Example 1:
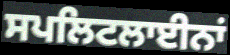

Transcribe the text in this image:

ਸਪਲਿਟਲਾਈਨਾਂ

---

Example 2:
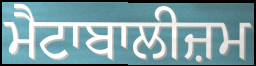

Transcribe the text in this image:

ਮੈਟਾਬਾਲੀਜ਼ਮ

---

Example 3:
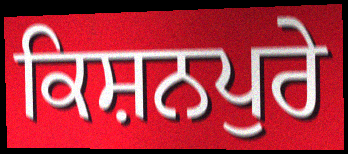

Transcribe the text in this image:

ਕਿਸ਼ਨਪੁਰੇ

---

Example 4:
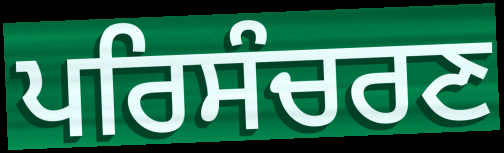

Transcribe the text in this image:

ਪਰਿਸੰਚਰਣ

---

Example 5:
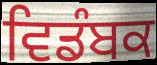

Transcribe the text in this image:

ਵਿਡੰਬਕ